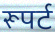
रूपर्ट